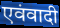
एवंवादी